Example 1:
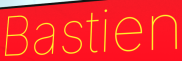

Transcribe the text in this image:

Bastien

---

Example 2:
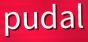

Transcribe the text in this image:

pudal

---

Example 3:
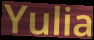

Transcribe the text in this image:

Yulia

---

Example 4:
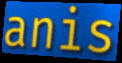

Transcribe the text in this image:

anis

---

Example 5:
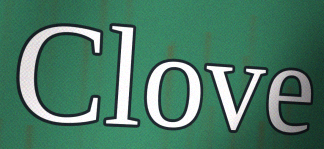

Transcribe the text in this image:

Clove